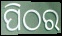
ପିଠର